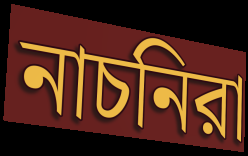
নাচনিরা